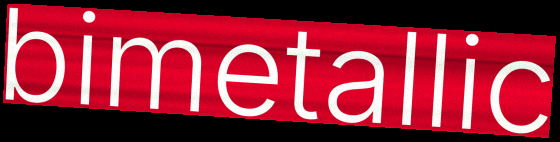
bimetallic